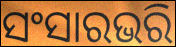
ସଂସାରଭରି